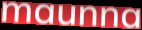
maunna